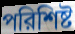
পরিশিষ্ট